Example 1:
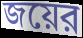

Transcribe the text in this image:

জয়ের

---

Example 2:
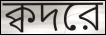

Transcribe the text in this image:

ক্বদরে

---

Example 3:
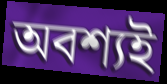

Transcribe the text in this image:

অবশ্যই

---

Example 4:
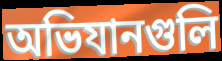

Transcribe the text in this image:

অভিযানগুলি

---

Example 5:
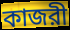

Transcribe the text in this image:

কাজরী